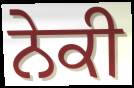
ਨੇਕੀ